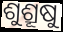
ଶୁଶ୍ରୂଷୁ